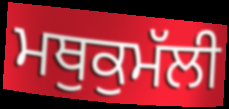
ਮਥੁਕੁਮੱਲੀ